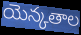
యెన్కతాల